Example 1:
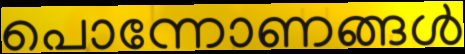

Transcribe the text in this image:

പൊന്നോണങ്ങൾ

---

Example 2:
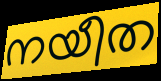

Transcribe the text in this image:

നയീത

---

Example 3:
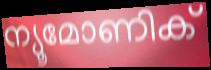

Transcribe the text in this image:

ന്യൂമോണിക്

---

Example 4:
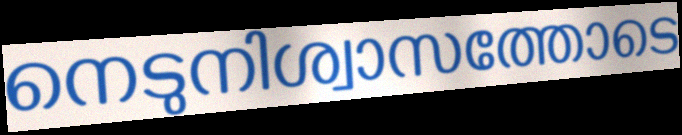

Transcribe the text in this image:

നെടുനിശ്വാസത്തോടെ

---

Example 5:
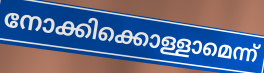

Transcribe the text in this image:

നോക്കിക്കൊള്ളാമെന്ന്